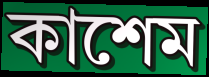
কাশেম